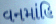
વનમાંહિ